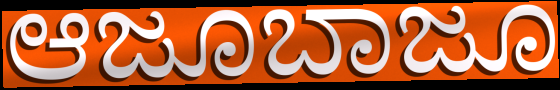
ಆಜೂಬಾಜೂ